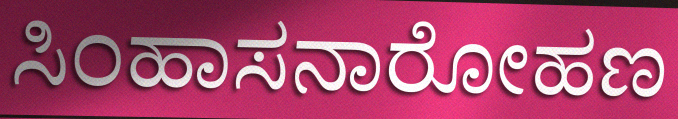
ಸಿಂಹಾಸನಾರೋಹಣ